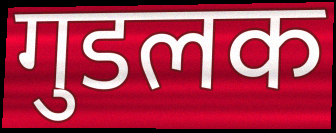
गुडलक